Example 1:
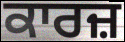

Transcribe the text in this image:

ਕਾਰਜ਼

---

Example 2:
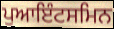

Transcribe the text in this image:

ਪੁਆਇੰਟਸਮਿਨ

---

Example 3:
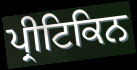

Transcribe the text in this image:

ਪ੍ਰੀਟਿਕਿਨ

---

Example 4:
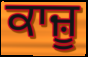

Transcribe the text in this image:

ਕਾਜ਼ੂ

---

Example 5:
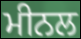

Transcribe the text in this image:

ਮੀਨਲ